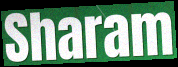
Sharam